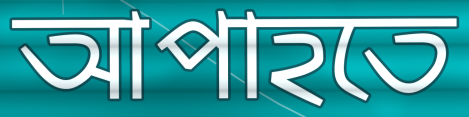
আপাহতে